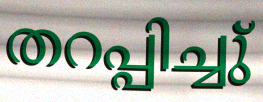
തറപ്പിച്ചു്